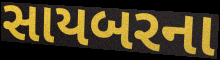
સાયબરના